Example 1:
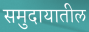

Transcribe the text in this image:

समुदायातील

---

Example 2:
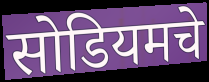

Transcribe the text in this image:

सोडियमचे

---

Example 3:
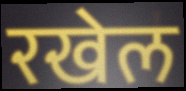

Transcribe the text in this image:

रखेल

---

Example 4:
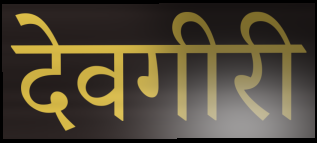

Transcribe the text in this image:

देवगीरी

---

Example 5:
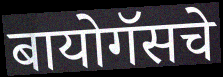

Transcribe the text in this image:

बायोगॅसचे